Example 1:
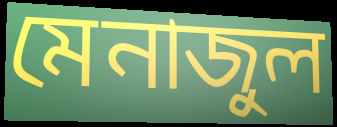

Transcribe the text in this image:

মেনাজুল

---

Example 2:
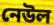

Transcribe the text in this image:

নেউল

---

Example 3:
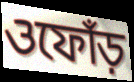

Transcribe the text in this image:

ওফোঁড়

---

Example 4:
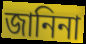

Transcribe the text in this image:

জানিনা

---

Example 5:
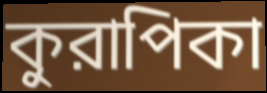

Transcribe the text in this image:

কুরাপিকা